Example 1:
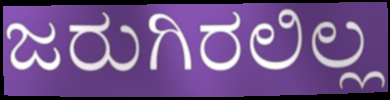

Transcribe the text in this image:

ಜರುಗಿರಲಿಲ್ಲ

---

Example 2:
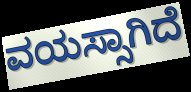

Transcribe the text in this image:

ವಯಸ್ಸಾಗಿದೆ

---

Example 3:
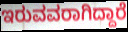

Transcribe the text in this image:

ಇರುವವರಾಗಿದ್ದಾರೆ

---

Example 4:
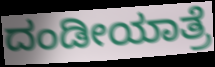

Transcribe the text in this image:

ದಂಡೀಯಾತ್ರೆ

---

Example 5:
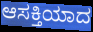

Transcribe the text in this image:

ಆಸಕ್ತಿಯಾದ